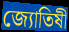
জ্যোতিষী